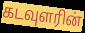
கடவுளரின்